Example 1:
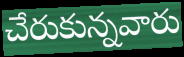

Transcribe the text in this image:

చేరుకున్నవారు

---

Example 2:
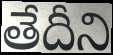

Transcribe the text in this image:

తేదీని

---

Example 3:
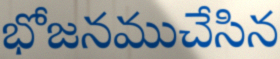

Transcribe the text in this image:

భోజనముచేసిన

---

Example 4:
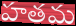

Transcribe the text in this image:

హతమ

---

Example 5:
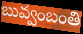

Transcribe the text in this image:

బువ్వంబంతి